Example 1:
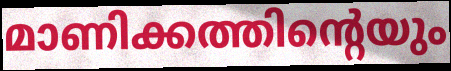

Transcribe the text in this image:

മാണിക്കത്തിന്റെയും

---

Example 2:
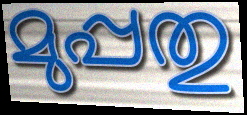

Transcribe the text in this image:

മുപ്പതു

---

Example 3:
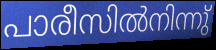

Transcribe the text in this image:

പാരീസിൽനിന്നു്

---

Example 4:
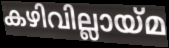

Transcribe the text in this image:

കഴിവില്ലായ്മ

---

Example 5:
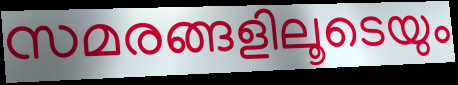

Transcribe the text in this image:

സമരങ്ങളിലൂടെയും